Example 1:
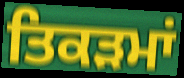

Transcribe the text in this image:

ਤਿਕੜਮਾਂ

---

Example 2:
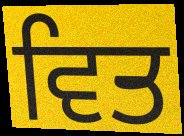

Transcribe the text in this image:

ਵਿਤ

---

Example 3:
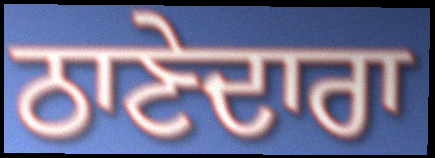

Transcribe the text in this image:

ਠਾਣੇਦਾਰਾ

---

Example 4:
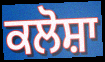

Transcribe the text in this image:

ਕਲੋਸ਼ਾ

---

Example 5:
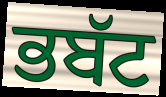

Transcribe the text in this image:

ਭਬੱਟ